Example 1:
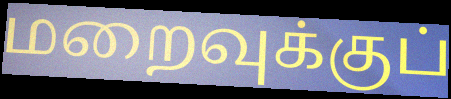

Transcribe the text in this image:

மறைவுக்குப்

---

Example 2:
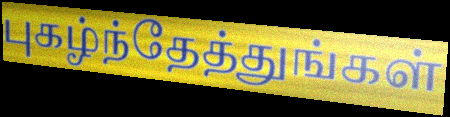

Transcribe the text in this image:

புகழ்ந்தேத்துங்கள்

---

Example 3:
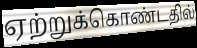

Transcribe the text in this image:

ஏற்றுக்கொண்டதில்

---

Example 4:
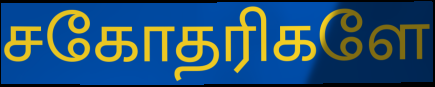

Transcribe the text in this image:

சகோதரிகளே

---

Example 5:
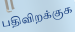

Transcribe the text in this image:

பதிவிறக்குக